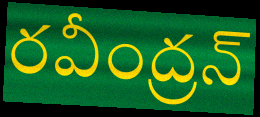
రవీంద్రన్